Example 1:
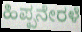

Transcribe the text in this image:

ಹಿಪ್ಪನೇರಳೆ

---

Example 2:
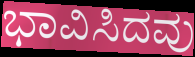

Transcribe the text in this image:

ಭಾವಿಸಿದವು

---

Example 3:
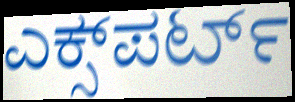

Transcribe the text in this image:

ಎಕ್ಸ್‌ಪರ್ಟ್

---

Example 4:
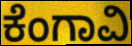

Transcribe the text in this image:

ಕೆಂಗಾವಿ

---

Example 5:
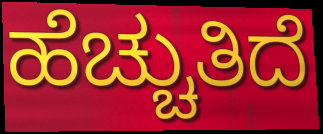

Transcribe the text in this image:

ಹೆಚ್ಚುತಿದೆ